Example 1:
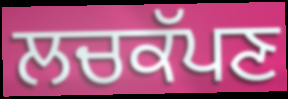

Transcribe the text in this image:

ਲਚਕੱਪਣ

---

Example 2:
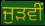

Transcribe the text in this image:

ਜੁੜਵੀਂ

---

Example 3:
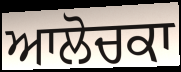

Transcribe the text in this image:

ਆਲੋਚਕਾ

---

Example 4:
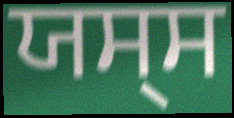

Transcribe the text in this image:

ਯਸ੍ਸ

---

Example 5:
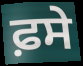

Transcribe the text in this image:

ਫ਼ਸੇ